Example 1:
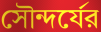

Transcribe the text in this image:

সৌন্দর্যের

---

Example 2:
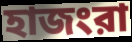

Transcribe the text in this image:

হাজংরা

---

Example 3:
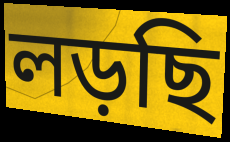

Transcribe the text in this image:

লড়ছি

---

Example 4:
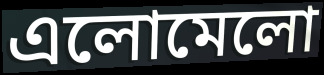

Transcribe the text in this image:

এলোমেলো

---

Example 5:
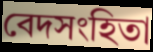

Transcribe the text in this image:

বেদসংহিতা